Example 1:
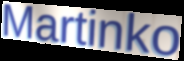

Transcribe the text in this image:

Martinko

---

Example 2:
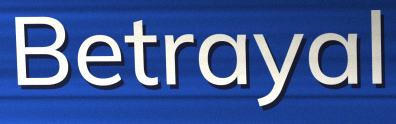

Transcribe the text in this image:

Betrayal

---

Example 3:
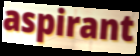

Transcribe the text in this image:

aspirant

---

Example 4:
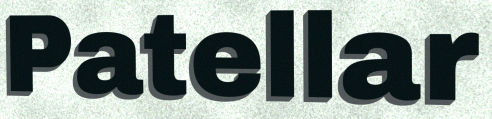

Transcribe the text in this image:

Patellar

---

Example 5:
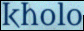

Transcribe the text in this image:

kholo